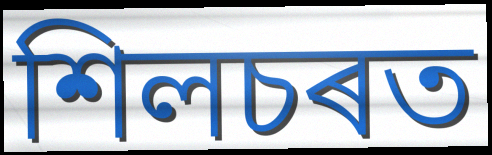
শিলচৰত